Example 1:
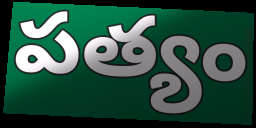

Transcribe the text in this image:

పత్యం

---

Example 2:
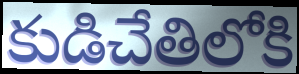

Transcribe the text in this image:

కుడిచేతిలోకి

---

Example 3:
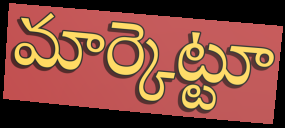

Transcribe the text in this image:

మార్కెట్టూ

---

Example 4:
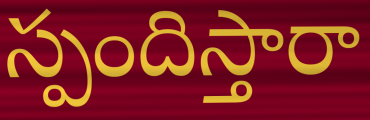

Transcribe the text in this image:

స్పందిస్తారా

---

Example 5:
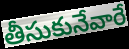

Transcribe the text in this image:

తీసుకునేవారే